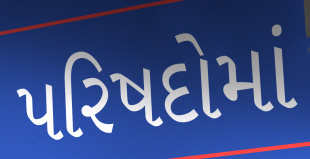
પરિષદોમાં